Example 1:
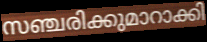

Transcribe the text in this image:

സഞ്ചരിക്കുമാറാക്കി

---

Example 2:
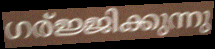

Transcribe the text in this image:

ഗര്ജ്ജിക്കുന്നു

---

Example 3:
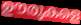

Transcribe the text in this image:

ഊരുകളെ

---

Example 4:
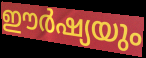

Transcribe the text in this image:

ഈർഷ്യയും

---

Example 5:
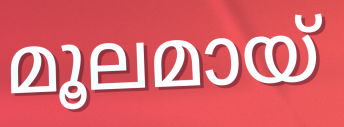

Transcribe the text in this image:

മൂലമായ്